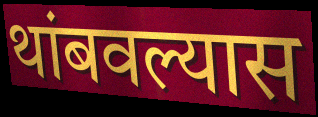
थांबवल्यास